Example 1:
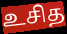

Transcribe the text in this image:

உசித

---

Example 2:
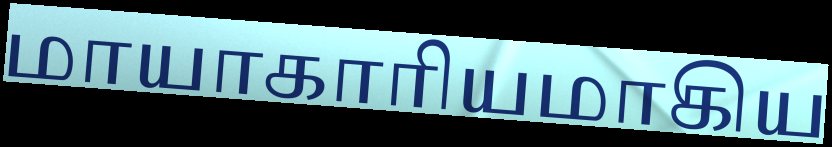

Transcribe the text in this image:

மாயாகாரியமாகிய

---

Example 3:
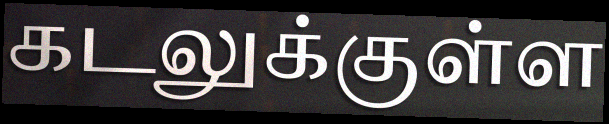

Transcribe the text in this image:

கடலுக்குள்ள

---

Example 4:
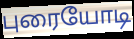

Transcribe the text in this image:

புரையோடி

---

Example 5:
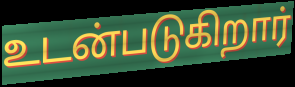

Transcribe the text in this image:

உடன்படுகிறார்